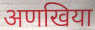
अणखिया